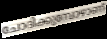
ചോദിക്കുമ്പോഴാണ്